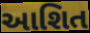
આશિત